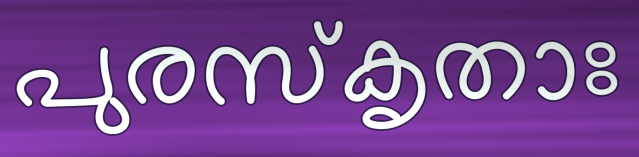
പുരസ്കൃതാഃ